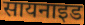
सायनाइड